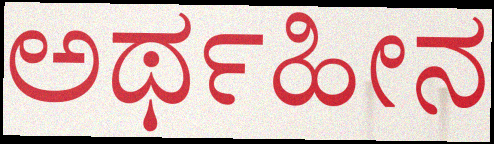
ಅರ್ಥಹೀನ